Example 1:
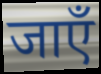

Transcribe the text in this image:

जाएँ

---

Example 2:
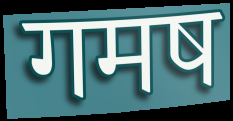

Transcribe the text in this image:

गमष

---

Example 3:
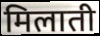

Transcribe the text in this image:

मिलाती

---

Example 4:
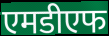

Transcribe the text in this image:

एमडीएफ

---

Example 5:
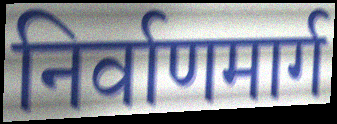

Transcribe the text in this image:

निर्वाणमार्ग